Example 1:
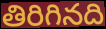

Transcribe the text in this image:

తిరిగినది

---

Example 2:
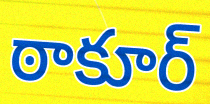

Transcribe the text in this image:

ఠాకూర్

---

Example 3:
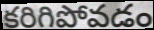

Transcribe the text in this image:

కరిగిపోవడం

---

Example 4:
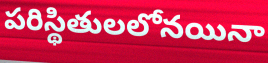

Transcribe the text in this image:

పరిస్థితులలోనయినా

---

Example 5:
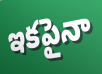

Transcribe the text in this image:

ఇకపైనా